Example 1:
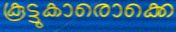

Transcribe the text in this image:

കൂട്ടുകാരൊക്കെ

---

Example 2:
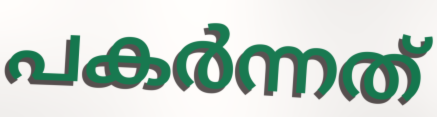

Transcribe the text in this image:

പകർന്നത്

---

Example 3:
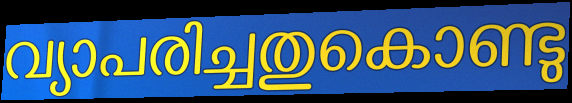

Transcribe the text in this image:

വ്യാപരിച്ചതുകൊണ്ടു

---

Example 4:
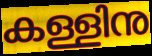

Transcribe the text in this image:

കള്ളിനു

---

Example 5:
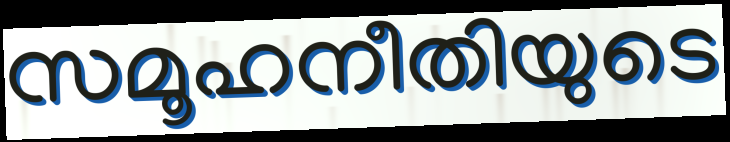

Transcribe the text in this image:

സമൂഹനീതിയുടെ